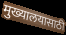
मुख्यालयासाठी